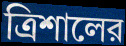
ত্রিশালের